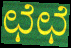
ಛೆಛೆ